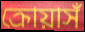
ক্রোয়াসঁ